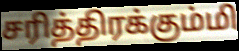
சரித்திரக்கும்மி